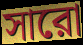
সারো